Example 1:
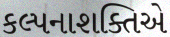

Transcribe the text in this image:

કલ્પનાશક્તિએ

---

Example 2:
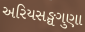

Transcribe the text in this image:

અરિયસઙ્ઘગુણા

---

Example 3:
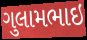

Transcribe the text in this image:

ગુલામભાઇ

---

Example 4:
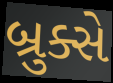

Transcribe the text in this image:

બ્રુક્સે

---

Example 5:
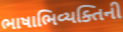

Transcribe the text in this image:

ભાષાભિવ્યક્તિની